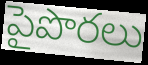
పైపొరలు